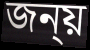
জন্য়